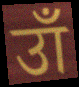
उाँ